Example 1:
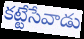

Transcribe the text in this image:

కట్టేసేవాడు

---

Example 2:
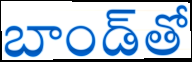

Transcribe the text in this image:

బాండ్‌తో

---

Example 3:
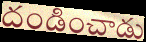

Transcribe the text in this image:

దండించాడు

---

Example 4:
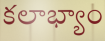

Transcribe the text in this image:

కలాభ్యాం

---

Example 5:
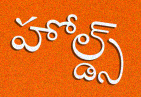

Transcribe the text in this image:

హోల్డ్స్